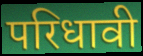
परिधावी